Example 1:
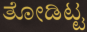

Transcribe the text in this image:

ತೋಡಿಟ್ಟ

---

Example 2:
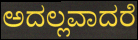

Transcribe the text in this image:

ಅದಲ್ಲವಾದರೆ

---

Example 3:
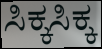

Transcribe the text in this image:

ಸಿಕ್ಕಸಿಕ್ಕ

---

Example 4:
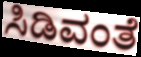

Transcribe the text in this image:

ಸಿಡಿವಂತೆ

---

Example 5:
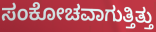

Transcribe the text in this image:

ಸಂಕೋಚವಾಗುತ್ತಿತ್ತು